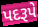
પદરૂપે